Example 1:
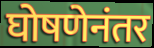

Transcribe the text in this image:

घोषणेनंतर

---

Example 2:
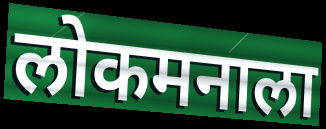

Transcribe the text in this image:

लोकमनाला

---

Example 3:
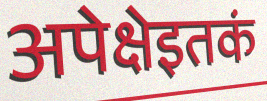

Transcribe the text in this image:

अपेक्षेइतकं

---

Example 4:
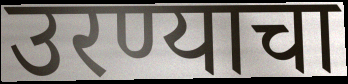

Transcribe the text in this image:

उरण्याचा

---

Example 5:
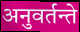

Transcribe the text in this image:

अनुवर्तन्ते